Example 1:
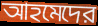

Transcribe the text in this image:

আহমেদের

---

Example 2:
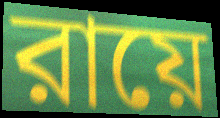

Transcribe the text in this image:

রায়ে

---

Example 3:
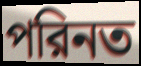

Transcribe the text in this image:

পরিনত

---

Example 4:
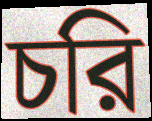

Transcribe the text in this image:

চরি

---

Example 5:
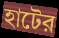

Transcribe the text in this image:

হাটের